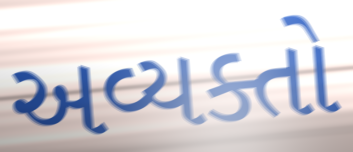
અવ્યક્તો